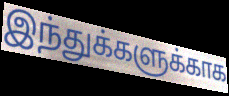
இந்துக்களுக்காக